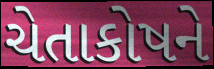
ચેતાકોષને